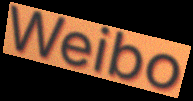
Weibo